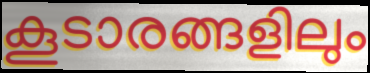
കൂടാരങ്ങളിലും